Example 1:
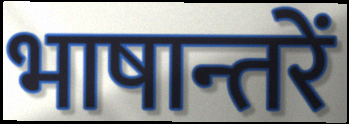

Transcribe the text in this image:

भाषान्तरें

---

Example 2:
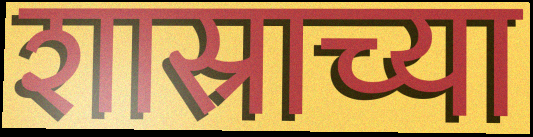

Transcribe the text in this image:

शास्राच्या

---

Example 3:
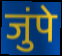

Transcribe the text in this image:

जुंपे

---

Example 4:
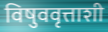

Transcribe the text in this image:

विषुववृत्ताशी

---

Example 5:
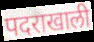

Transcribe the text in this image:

पदराखाली